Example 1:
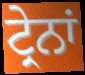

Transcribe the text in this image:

ਟ੍ਰੇਨਾਂ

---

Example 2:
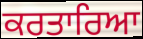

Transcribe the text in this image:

ਕਰਤਾਰਿਆ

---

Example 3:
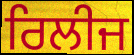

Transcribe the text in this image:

ਰਿਲੀਜ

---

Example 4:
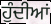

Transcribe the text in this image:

ਹੁੰਦੀਆਂ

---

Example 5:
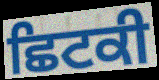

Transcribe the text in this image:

ਛਿਟਕੀ